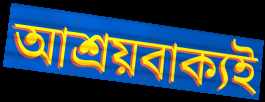
আশ্ৰয়বাক্যই